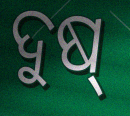
ଦୁଷ୍